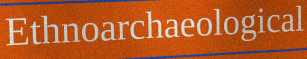
Ethnoarchaeological